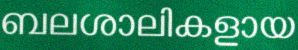
ബലശാലികളായ